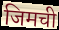
जिमची